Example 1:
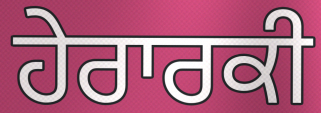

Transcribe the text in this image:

ਹੇਰਾਰਕੀ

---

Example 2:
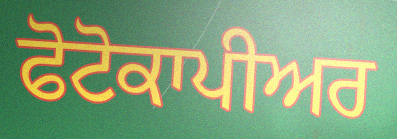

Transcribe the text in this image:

ਫੋਟੋਕਾਪੀਅਰ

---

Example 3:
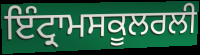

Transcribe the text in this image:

ਇੰਟ੍ਰਾਮਸਕੂਲਰਲੀ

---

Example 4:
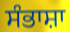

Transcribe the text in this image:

ਸੰਭਾਸ਼ਾ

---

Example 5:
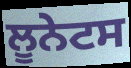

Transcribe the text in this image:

ਲੂਨੇਟਸ